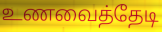
உணவைத்தேடி